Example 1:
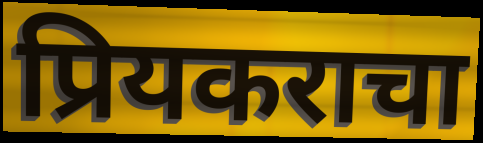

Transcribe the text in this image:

प्रियकराचा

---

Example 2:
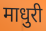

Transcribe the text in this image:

माधुरी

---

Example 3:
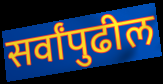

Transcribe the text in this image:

सर्वांपुढील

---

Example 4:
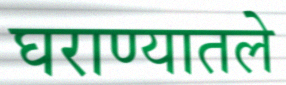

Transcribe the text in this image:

घराण्यातले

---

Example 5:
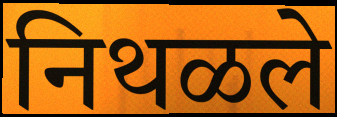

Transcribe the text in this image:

निथळले